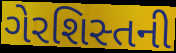
ગેરશિસ્તની